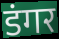
डंगर